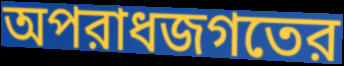
অপরাধজগতের